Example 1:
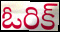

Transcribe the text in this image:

ఓరిక్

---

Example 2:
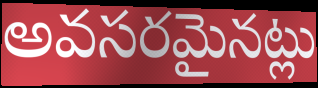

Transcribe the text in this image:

అవసరమైనట్లు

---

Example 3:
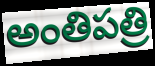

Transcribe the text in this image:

అంతిపత్రి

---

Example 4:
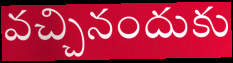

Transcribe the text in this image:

వచ్చినందుకు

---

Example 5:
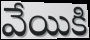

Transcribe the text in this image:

వేయికి